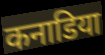
कनाडिया